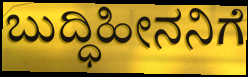
ಬುದ್ಧಿಹೀನನಿಗೆ